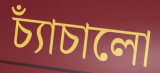
চ্যাঁচালো